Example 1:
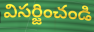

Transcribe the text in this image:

విసర్జించండి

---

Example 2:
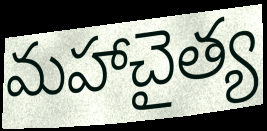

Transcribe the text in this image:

మహాచైత్య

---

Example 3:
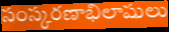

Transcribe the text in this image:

సంస్కరణాభిలాషులు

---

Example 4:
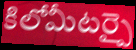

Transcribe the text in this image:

కిలోమీటర్పై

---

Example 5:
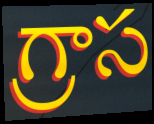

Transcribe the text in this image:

గ్రాస